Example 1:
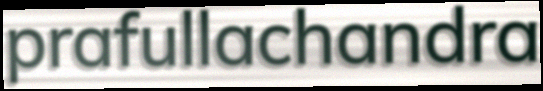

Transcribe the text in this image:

prafullachandra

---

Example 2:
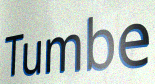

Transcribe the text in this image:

Tumbe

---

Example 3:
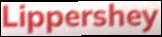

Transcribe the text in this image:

Lippershey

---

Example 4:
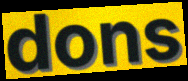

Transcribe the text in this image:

dons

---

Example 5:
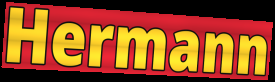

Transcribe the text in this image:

Hermann